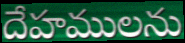
దేహములను